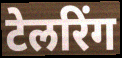
टेलरिंग